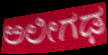
ಅಲೀಗಢ